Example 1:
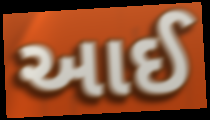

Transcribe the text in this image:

આઈ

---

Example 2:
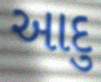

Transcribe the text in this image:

આદુ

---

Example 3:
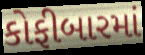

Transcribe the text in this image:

કોફીબારમાં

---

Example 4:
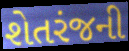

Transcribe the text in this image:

શેતરંજની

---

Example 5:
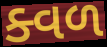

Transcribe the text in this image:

ક્વળ